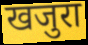
खजुरा